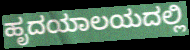
ಹೃದಯಾಲಯದಲ್ಲಿ